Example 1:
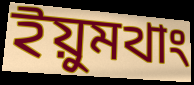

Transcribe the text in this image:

ইয়ুমথাং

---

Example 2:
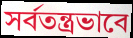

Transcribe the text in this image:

সর্বতন্ত্রভাবে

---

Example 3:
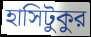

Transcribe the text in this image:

হাসিটুকুর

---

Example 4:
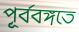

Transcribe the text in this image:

পূর্ববঙ্গতে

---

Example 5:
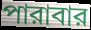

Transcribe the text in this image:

পারাবার